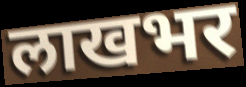
लाखभर